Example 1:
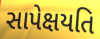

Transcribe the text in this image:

સાપેક્ષયતિ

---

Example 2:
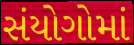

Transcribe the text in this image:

સંયોગોમાં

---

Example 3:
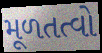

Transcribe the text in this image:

મૂળતત્વો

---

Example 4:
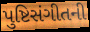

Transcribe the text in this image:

પુષ્ટિસંગીતની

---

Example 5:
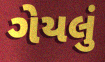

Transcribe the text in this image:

ગેયલું